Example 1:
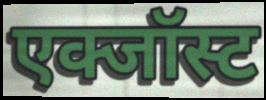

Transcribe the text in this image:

एक्जॉस्ट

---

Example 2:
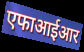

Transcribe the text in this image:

एफाआईआर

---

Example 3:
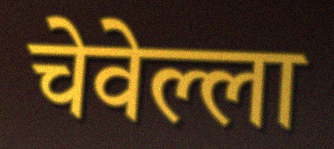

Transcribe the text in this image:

चेवेल्ला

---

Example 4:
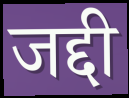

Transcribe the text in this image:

जद्दी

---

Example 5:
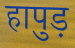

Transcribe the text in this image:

हापुड़